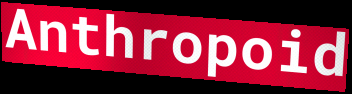
Anthropoid